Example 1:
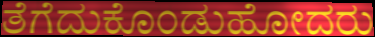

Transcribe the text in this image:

ತೆಗೆದುಕೊಂಡುಹೋದರು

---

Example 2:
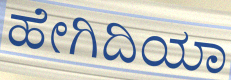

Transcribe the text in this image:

ಹೇಗಿದಿಯಾ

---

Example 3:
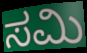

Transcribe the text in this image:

ಸಮಿ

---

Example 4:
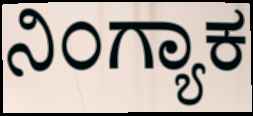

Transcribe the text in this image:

ನಿಂಗ್ಯಾಕ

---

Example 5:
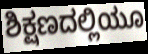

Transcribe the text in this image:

ಶಿಕ್ಷಣದಲ್ಲಿಯೂ